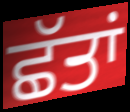
ਛੱਤਾਂ